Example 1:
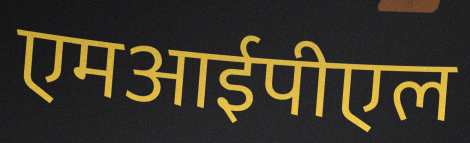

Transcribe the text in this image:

एमआईपीएल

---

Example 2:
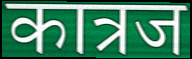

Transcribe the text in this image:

कात्रज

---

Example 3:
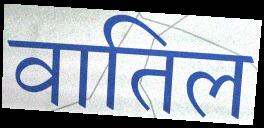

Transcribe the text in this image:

वातिल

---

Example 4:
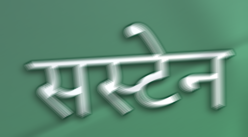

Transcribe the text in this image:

सस्टेन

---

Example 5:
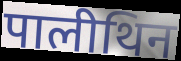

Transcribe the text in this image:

पालीथिन